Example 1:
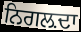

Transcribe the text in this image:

ਨਿਗਲ਼ਦਾ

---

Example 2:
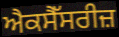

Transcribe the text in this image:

ਐਕਸੈੱਸਰੀਜ਼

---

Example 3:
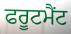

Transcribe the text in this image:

ਫਰੂਟਮੈਂਟ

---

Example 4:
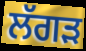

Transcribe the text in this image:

ਲੱਗੜ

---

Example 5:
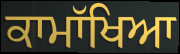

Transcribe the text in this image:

ਕਾਮਾੱਖਿਆ